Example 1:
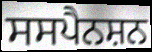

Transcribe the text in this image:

ਸਸਪੈਨਸ਼ਨ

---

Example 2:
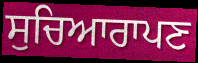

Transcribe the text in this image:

ਸੁਚਿਆਰਾਪਣ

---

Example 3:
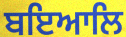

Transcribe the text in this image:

ਬਇਆਲਿ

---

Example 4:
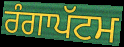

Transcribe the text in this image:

ਰੰਗਾਪੱਟਮ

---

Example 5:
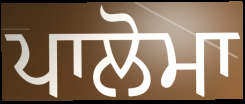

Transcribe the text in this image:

ਪਾਲੋਮਾ